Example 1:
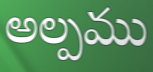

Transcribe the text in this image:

అల్పము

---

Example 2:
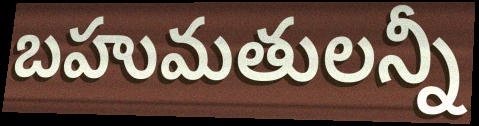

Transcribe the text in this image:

బహుమతులన్నీ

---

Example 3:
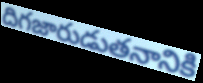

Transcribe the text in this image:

దిగజారుడుతనానికి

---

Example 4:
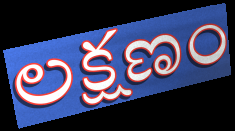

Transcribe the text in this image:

లక్షణం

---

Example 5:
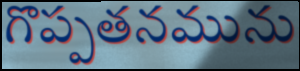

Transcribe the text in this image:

గొప్పతనమును